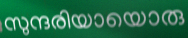
സുന്ദരിയായൊരു